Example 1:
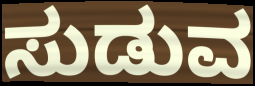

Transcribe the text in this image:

ಸುಡುವ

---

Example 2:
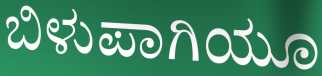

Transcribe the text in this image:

ಬಿಳುಪಾಗಿಯೂ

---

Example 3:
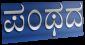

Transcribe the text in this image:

ಪಂಥದ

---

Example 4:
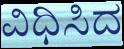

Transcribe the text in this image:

ವಿಧಿಸಿದ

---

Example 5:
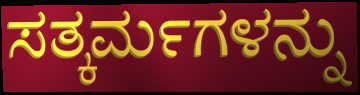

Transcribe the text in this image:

ಸತ್ಕರ್ಮಗಳನ್ನು